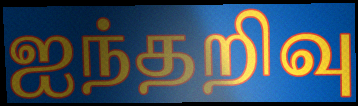
ஐந்தறிவு